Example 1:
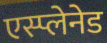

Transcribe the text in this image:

एस्प्लेनेड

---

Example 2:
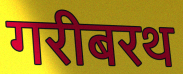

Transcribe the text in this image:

गरीबरथ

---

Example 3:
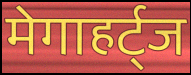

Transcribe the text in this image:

मेगाहर्ट्ज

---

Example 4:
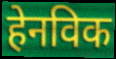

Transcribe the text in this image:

हेनविक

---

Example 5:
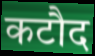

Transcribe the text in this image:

कटौद